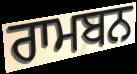
ਰਾਮਬਨ